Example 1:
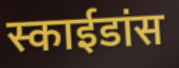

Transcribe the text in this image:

स्काईडांस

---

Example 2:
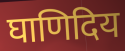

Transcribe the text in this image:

घाणिदिय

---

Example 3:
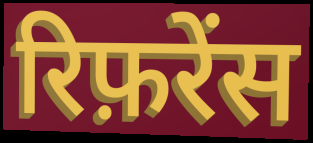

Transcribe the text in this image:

रिफ़रेंस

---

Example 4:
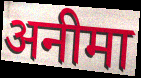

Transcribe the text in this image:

अनीमा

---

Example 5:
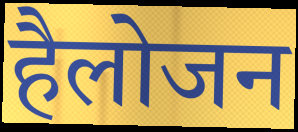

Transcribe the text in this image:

हैलोजन